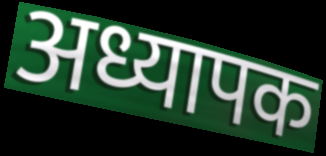
अध्यापक